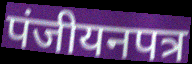
पंजीयनपत्र